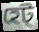
হেট্